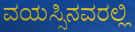
ವಯಸ್ಸಿನವರಲ್ಲಿ